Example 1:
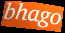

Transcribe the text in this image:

bhago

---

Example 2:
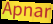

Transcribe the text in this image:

Apnar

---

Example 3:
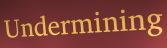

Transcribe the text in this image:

Undermining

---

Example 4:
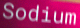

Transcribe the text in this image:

Sodium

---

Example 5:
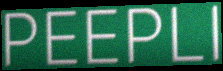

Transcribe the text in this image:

PEEPLI